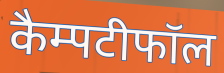
कैम्पटीफॉल